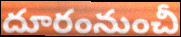
దూరంనుంచీ